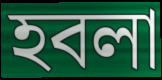
হবলা